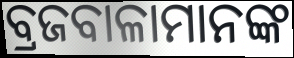
ବ୍ରଜବାଳାମାନଙ୍କ